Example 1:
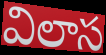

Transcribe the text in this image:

విలాస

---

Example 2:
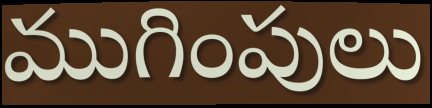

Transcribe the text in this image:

ముగింపులు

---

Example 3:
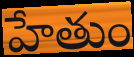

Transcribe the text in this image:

హేతుం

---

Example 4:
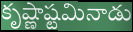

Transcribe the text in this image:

కృష్ణాష్టమినాడు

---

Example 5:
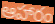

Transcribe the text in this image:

ఆహారం